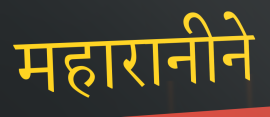
महारानीने